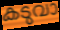
കടുവാ